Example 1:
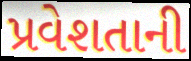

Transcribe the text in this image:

પ્રવેશતાની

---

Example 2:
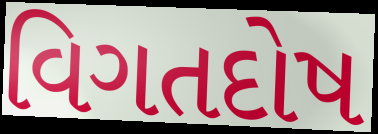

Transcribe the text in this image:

વિગતદોષ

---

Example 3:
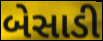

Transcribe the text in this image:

બેસાડી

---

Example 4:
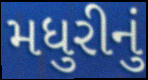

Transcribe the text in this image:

મધુરીનું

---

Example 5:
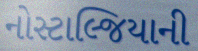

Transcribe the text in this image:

નોસ્ટાલ્જિયાની